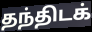
தந்திடக்